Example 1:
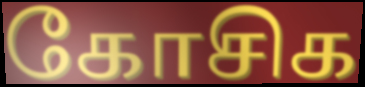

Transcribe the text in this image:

கோசிக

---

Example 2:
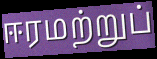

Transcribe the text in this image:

ஈரமற்றுப்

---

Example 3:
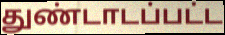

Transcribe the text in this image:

துண்டாடப்பட்ட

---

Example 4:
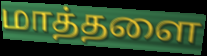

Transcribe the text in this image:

மாத்தளை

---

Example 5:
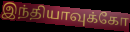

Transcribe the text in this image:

இந்தியாவுக்கோ